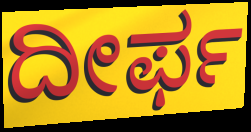
ದೀರ್ಫ